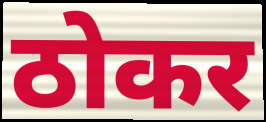
ठोकर